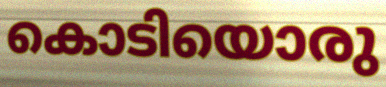
കൊടിയൊരു